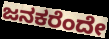
ಜನಕರೆಂದೇ